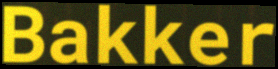
Bakker